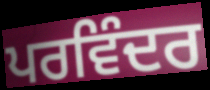
ਪਰਵਿੰਦਰ